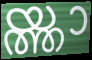
യ്ത്താ